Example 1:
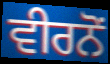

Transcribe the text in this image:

ਵੀਰਨੋਂ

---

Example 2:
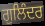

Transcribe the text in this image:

ਗੁਲਿੰਦਰ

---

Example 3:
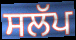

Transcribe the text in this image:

ਸਲੱਪ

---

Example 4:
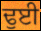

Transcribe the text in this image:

ਢੁਈ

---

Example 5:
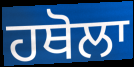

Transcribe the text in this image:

ਹਥੋਲਾ